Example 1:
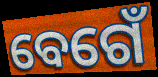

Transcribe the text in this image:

ବେଗେଁ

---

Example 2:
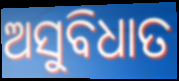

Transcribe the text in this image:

ଅସୁବିଧାତ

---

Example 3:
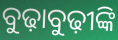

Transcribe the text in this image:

ବୁଢ଼ାବୁଢ଼ୀଙ୍କି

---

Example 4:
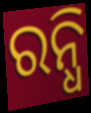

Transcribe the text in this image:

ରନ୍ଧି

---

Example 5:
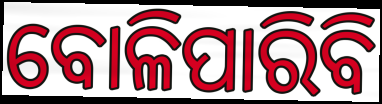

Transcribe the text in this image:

ବୋଳିପାରିବି